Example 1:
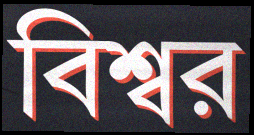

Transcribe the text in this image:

বিশ্বর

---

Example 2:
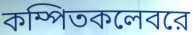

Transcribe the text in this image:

কম্পিতকলেবরে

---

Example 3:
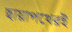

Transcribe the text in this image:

ছায়াপথেরই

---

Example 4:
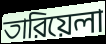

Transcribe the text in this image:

তারিয়েলা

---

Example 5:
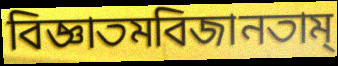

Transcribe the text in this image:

বিজ্ঞাতমবিজানতাম্